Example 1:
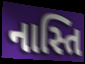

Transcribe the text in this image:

નાસ્તિ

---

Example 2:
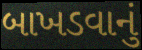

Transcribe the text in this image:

બાખડવાનું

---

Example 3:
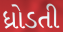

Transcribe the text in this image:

ધ્રોડતી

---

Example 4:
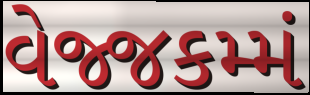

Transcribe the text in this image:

વેજ્જકમ્મં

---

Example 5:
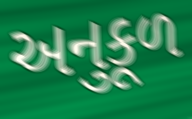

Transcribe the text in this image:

અનુકૂળ